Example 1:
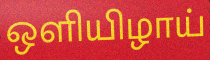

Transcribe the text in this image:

ஒளியிழாய்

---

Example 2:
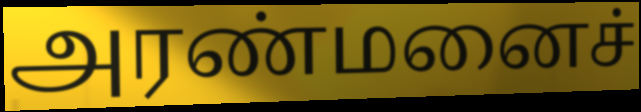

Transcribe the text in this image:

அரண்மனைச்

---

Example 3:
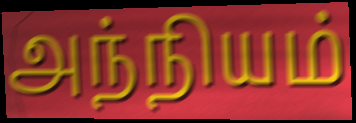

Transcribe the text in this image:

அந்நியம்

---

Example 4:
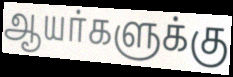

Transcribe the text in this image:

ஆயர்களுக்கு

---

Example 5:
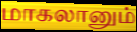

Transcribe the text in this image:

மாகலானும்